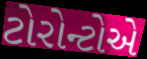
ટોરોન્ટોએ